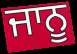
ਜਾਨੂ